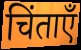
चिंताएँ